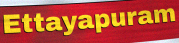
Ettayapuram